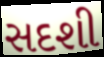
સદશી